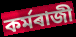
কৰ্মৰাজী